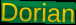
Dorian